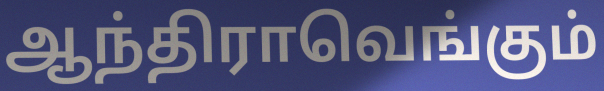
ஆந்திராவெங்கும்